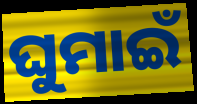
ଘୁମାଇଁ